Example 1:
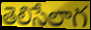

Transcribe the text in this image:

తెలిసేలాగ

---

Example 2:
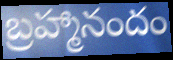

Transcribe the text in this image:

బ్రహ్మానందం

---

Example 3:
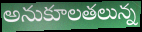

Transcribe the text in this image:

అనుకూలతలున్న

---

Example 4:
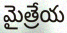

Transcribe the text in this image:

మైత్రేయ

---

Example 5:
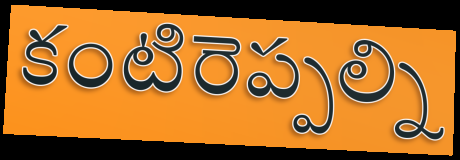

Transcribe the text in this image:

కంటిరెప్పల్ని